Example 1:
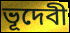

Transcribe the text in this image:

ভূদেবী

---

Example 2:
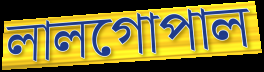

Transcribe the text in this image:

লালগোপাল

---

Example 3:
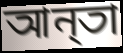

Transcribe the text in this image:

আন্‌তা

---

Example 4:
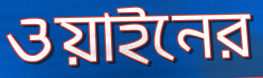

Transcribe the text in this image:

ওয়াইনের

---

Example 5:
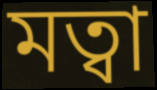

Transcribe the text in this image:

মত্বা